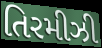
તિરમીઝી